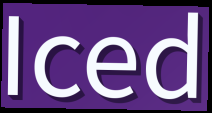
Iced